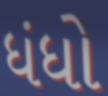
ધંધો